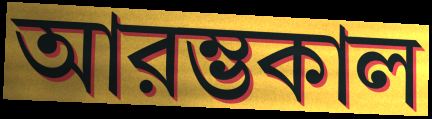
আরম্ভকাল